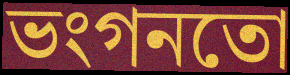
ভংগনতো